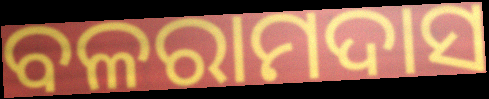
ବଳରାମଦାସ